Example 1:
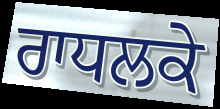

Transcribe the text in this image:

ਰਾਧਲਕੇ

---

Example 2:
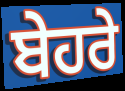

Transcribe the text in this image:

ਬੇਹਰੇ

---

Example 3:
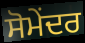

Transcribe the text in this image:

ਸੋਮੇਂਦਰ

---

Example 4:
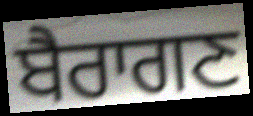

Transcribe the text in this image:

ਬੈਰਾਗਣ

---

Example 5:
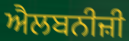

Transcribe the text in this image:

ਐਲਬਨੀਜ਼ੀ